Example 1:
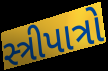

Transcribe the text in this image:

સ્ત્રીપાત્રો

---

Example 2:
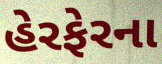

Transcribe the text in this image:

હેરફેરના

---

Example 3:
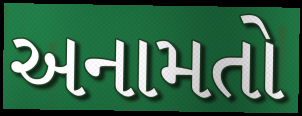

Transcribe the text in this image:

અનામતો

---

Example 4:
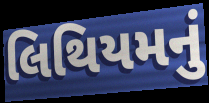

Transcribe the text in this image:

લિથિયમનું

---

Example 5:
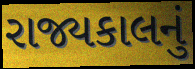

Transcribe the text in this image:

રાજ્યકાલનું